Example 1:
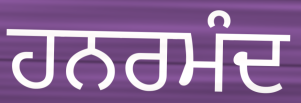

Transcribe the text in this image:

ਹਨਰਮੰਦ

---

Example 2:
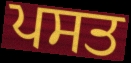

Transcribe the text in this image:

ਪਸਤ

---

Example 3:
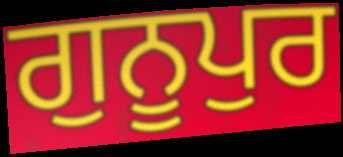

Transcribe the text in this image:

ਗੁਨੂਪੁਰ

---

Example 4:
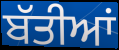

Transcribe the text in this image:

ਬੱਤੀਆਂ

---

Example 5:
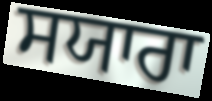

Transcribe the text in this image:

ਸਯਾਰਾ